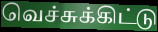
வெச்சுக்கிட்டு